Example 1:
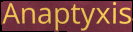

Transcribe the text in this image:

Anaptyxis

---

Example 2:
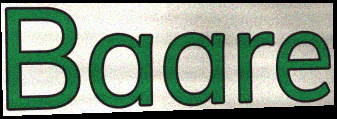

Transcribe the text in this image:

Baare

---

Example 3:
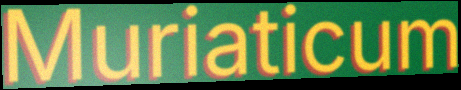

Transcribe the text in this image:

Muriaticum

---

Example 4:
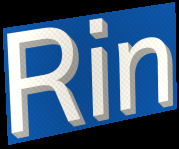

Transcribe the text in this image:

Rin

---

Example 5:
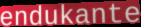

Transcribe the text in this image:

endukante